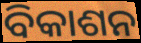
ବିକାଶନ